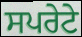
ਸਪਰੇਟੇ